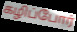
கழிப்போர்